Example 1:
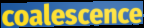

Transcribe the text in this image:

coalescence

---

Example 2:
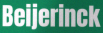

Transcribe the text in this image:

Beijerinck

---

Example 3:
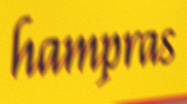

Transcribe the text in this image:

hampras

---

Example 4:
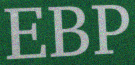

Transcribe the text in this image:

EBP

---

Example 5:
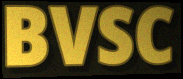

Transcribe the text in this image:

BVSC